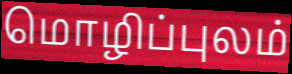
மொழிப்புலம்